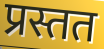
प्रस्तत